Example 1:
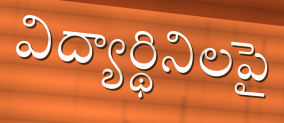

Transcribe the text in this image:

విద్యార్థినిలపై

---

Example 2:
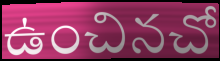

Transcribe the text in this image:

ఉంచినచో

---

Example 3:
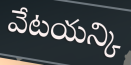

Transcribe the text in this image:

వేటయన్కి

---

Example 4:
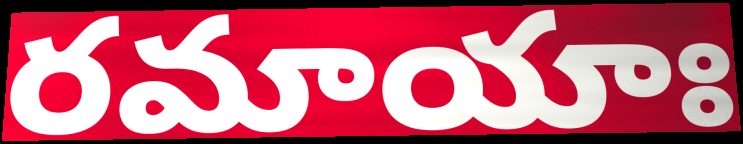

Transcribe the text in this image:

రమాయాః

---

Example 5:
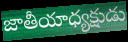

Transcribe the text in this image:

జాతీయాధ్యక్షుడు